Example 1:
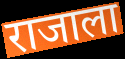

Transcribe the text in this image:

राजाला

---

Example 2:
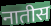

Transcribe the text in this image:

नातीस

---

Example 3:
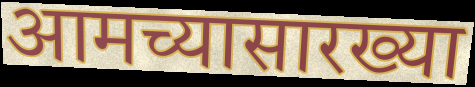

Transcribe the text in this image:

आमच्यासारख्या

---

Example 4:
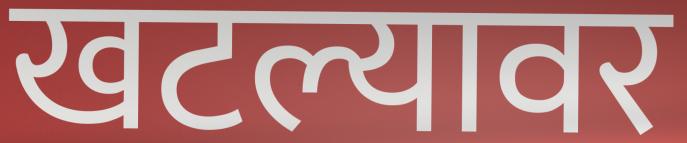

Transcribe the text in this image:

खटल्यावर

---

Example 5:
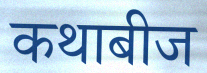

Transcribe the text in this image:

कथाबीज